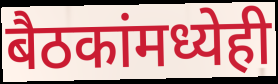
बैठकांमध्येही